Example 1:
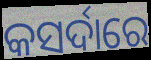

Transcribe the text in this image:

କସର୍ଦାରେ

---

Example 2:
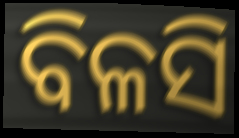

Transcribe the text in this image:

ବିଳସି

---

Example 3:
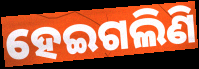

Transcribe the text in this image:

ହେଇଗଲିଣି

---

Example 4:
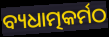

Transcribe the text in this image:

ବ୍ୟଧାତ୍ମକର୍ମଠ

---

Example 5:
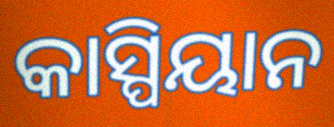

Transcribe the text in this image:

କାସ୍ପିୟାନ